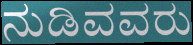
ನುಡಿವವರು